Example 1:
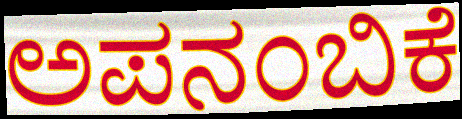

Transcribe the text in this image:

ಅಪನಂಬಿಕೆ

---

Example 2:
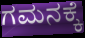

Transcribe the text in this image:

ಗಮನಕ್ಕೆ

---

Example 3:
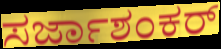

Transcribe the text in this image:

ಸರ್ಜಾಶಂಕರ್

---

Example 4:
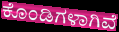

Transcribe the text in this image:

ಕೊಂಡಿಗಳಾಗಿವೆ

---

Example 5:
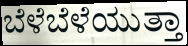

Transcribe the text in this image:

ಬೆಳೆಬೆಳೆಯುತ್ತಾ